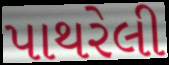
પાથરેલી